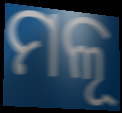
ମଳୂ